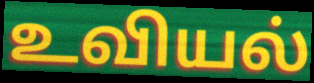
உவியல்